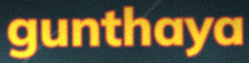
gunthaya